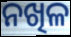
ନଖିଳ